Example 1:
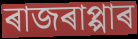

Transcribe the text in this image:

ৰাজৰাপ্পাৰ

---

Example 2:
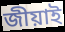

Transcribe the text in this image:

জীয়াই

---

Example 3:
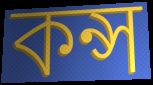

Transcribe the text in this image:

কন্স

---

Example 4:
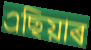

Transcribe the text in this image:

এছিয়াৰ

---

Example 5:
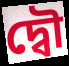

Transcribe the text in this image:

দ্বৌ